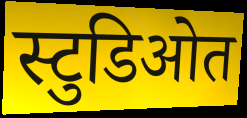
स्टुडिओत